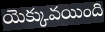
యెక్కువయింది